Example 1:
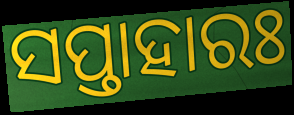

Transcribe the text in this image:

ସପ୍ତାହାରଃ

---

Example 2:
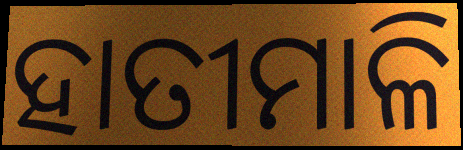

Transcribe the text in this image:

ହାତୀମାଳି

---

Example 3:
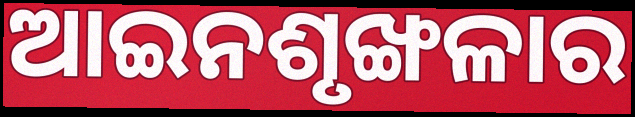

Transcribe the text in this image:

ଆଇନଶୃଙ୍ଖଳାର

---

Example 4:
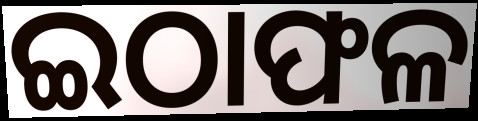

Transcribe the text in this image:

ଇଠାଫଳ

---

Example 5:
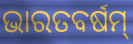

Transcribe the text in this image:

ଭାରତବର୍ଷମ୍